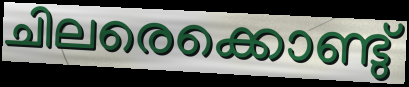
ചിലരെക്കൊണ്ടു്